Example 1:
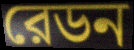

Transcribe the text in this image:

রেডন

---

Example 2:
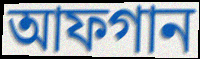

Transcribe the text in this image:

আফগান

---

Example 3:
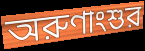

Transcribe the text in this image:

অরুণাংশুর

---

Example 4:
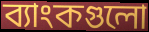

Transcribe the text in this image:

ব্যাংকগুলো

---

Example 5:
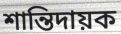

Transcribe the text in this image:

শান্তিদায়ক